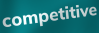
competitive